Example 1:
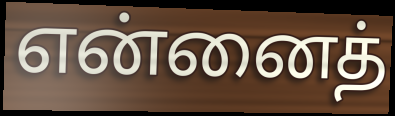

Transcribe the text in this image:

என்னைத்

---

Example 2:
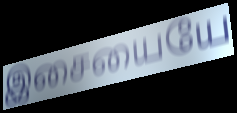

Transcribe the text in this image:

இசையையே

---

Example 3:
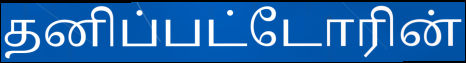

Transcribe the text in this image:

தனிப்பட்டோரின்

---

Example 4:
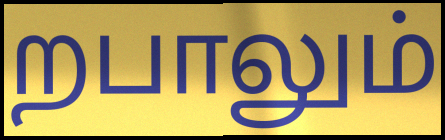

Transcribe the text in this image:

றபாலும்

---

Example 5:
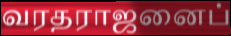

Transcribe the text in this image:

வரதராஜனைப்